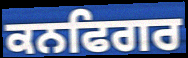
ਕਨਫਿਗਰ